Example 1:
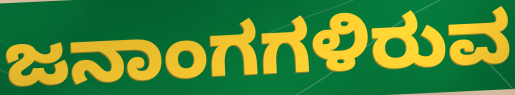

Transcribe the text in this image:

ಜನಾಂಗಗಳಿರುವ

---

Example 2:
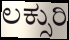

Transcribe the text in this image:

ಲಕ್ಸುರಿ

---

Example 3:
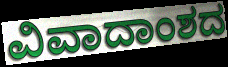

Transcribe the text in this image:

ವಿವಾದಾಂಶದ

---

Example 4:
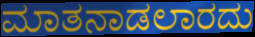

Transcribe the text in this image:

ಮಾತನಾಡಲಾರದು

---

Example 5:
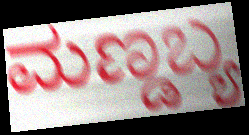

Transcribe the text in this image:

ಮಣ್ಡಬ್ಯ